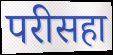
परीसहा